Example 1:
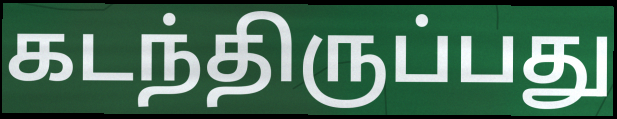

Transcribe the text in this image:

கடந்திருப்பது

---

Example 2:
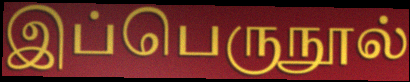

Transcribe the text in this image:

இப்பெருநூல்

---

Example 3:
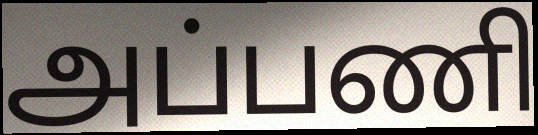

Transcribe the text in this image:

அப்பணி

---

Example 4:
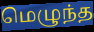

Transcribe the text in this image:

மெழுந்த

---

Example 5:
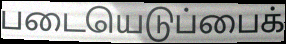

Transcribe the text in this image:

படையெடுப்பைக்